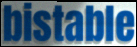
bistable